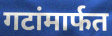
गटांमार्फत